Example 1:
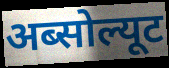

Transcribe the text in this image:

अब्सोल्यूट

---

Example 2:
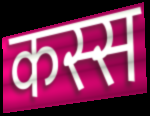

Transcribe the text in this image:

कस्स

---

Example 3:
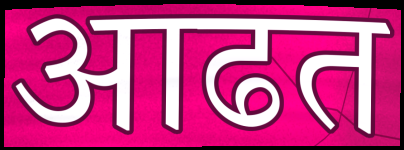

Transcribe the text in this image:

आढत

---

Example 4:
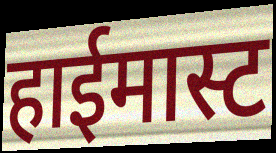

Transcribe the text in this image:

हाईमास्ट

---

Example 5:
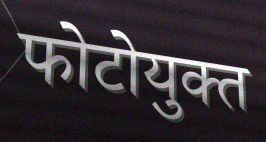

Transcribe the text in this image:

फोटोयुक्त